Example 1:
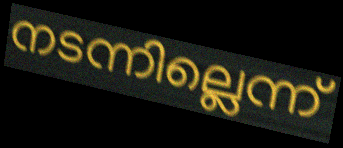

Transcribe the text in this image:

നടന്നില്ലെന്ന്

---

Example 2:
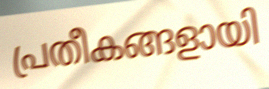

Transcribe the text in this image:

പ്രതീകങ്ങളായി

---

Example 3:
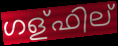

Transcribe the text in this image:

ഗള്ഫില്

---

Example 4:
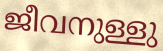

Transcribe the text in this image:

ജീവനുള്ളു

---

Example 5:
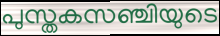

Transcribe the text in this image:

പുസ്തകസഞ്ചിയുടെ